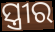
ସ୍ତ୍ରୀର